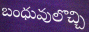
బంధువులొచ్చి